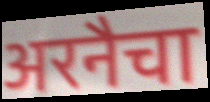
अरनैचा